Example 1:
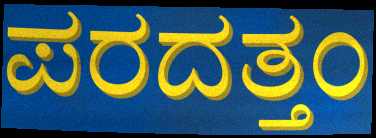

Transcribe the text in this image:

ಪರದತ್ತಂ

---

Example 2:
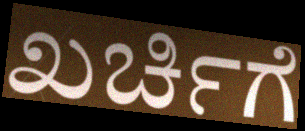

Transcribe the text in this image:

ಖರ್ಚಿಗೆ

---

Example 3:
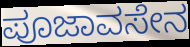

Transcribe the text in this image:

ಪೂಜಾವಸೇನ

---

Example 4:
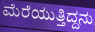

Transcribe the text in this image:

ಮೆರೆಯುತ್ತಿದ್ದನು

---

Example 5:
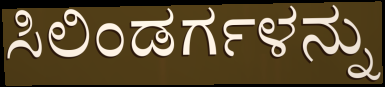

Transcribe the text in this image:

ಸಿಲಿಂಡರ್ಗಳನ್ನು